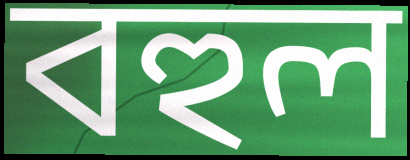
বহুল